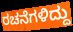
ರಚನೆಗಳಿದ್ದು